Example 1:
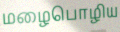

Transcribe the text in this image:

மழைபொழிய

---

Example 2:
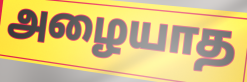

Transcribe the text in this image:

அழையாத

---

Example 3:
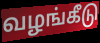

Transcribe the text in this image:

வழங்கீடு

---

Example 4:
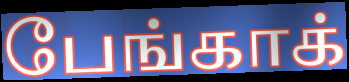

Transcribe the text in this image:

பேங்காக்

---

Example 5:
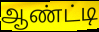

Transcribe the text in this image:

ஆண்ட்டி